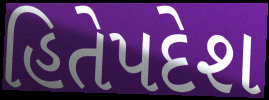
હિતેપદેશ